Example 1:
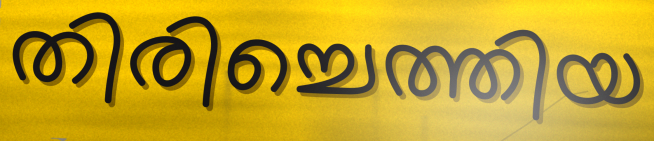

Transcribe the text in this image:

തിരിച്ചെത്തിയ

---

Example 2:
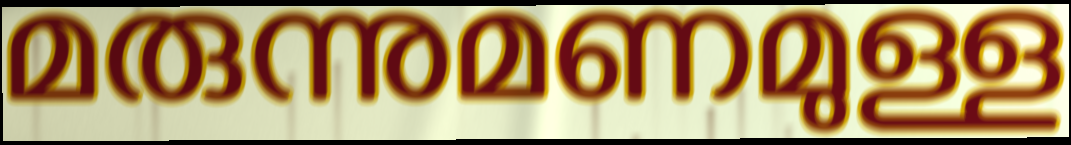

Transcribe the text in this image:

മരുന്നുമണമുള്ള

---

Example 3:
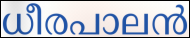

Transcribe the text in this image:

ധീരപാലൻ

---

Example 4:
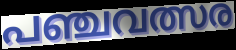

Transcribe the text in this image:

പഞ്ചവത്സര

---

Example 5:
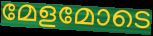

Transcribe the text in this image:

മേളമോടെ